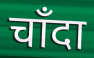
चाँदा